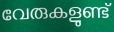
വേരുകളുണ്ട്